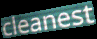
cleanest